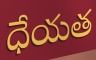
ధేయత